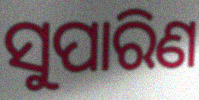
ସୁପାରିଣ